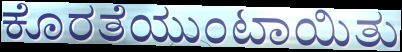
ಕೊರತೆಯುಂಟಾಯಿತು